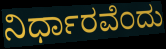
ನಿರ್ಧಾರವೆಂದು